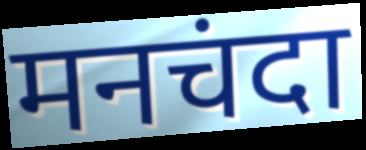
मनचंदा